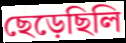
ছেড়েছিলি